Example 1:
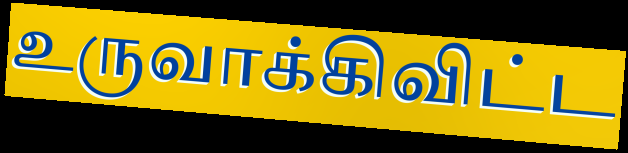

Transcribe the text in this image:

உருவாக்கிவிட்ட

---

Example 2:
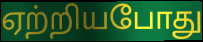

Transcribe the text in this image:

ஏற்றியபோது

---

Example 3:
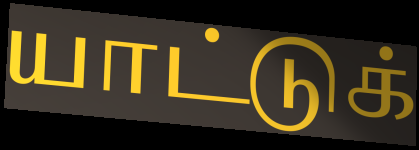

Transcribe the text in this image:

யாட்டுக்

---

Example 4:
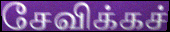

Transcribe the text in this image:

சேவிக்கச்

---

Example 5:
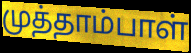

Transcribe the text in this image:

முத்தாம்பாள்